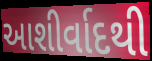
આશીર્વાદથી